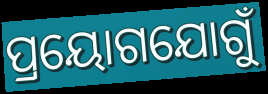
ପ୍ରୟୋଗଯୋଗୁଁ